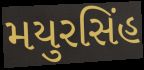
મયુરસિંહ